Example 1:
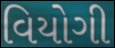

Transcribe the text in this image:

વિયોગી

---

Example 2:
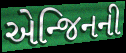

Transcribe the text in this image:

એન્જિનની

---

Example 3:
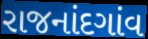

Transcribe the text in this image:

રાજનાંદગાંવ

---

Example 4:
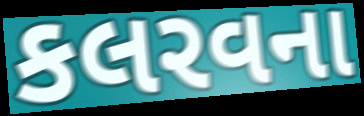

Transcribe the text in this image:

કલરવના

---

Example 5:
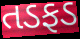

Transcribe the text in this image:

તડફડ